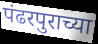
पंढरपुराच्या